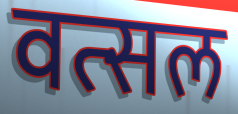
वत्सल